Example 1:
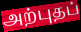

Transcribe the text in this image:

அற்புதப்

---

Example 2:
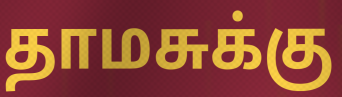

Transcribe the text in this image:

தாமசுக்கு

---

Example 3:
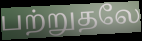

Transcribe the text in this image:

பற்றுதலே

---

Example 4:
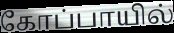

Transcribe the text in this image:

கோப்பாயில்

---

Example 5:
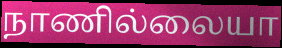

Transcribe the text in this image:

நாணில்லையா